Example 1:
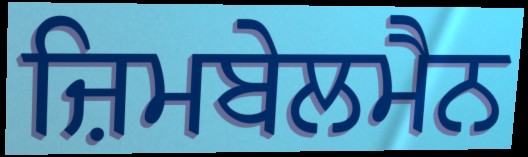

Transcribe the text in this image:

ਜ਼ਿਮਬੇਲਮੈਨ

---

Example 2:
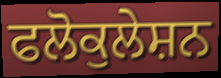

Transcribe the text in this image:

ਫਲੋਕੁਲੇਸ਼ਨ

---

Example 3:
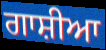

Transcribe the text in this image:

ਗਾਸ਼ੀਆ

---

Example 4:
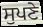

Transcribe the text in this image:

ਸੁਪਣੇ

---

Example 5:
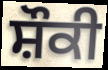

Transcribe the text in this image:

ਸ਼ੌਕੀ